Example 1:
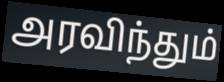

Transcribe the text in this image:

அரவிந்தும்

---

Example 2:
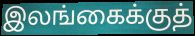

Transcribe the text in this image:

இலங்கைக்குத்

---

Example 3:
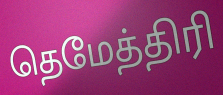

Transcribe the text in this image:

தெமேத்திரி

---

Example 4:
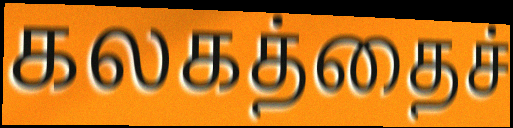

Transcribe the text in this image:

கலகத்தைச்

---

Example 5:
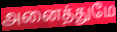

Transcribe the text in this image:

அனைத்துமே